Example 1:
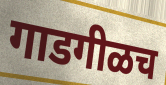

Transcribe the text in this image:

गाडगीळच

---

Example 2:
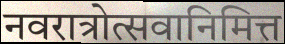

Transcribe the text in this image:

नवरात्रोत्सवानिमित्त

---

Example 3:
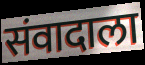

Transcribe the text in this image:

संवादाला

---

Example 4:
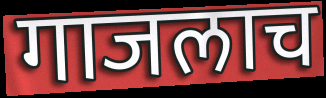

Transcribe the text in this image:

गाजलाच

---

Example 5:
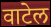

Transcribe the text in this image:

वाटेल